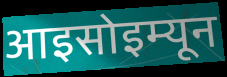
आइसोइम्यून